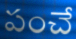
పంచే